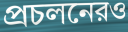
প্রচলনেরও